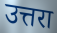
उत्तरा